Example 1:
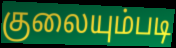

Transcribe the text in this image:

குலையும்படி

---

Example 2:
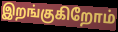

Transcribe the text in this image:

இறங்குகிறோம்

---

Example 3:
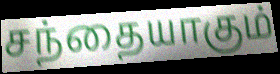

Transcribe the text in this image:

சந்தையாகும்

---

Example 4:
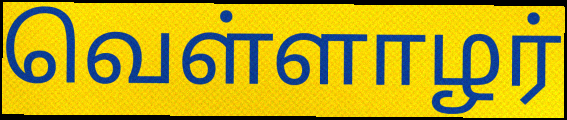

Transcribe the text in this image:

வெள்ளாழர்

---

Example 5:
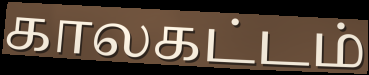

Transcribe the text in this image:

காலகட்டம்